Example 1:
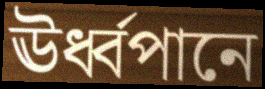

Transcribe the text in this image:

ঊর্ধ্বপানে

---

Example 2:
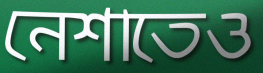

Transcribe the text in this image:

নেশাতেও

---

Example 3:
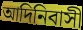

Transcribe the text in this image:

আদিনিবাসী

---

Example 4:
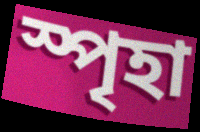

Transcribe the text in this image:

স্পৃহা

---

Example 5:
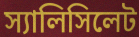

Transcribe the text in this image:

স্যালিসিলেট